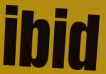
ibid